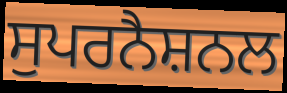
ਸੁਪਰਨੈਸ਼ਨਲ